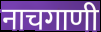
नाचगाणी